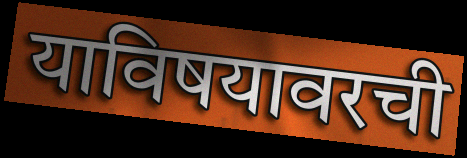
याविषयावरची